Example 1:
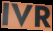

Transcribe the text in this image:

IVR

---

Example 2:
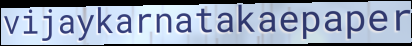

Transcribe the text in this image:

vijaykarnatakaepaper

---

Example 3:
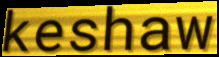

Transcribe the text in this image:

keshaw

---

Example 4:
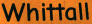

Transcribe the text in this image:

Whittall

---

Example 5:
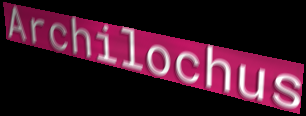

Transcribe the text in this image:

Archilochus